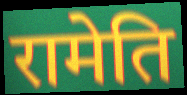
रामेति